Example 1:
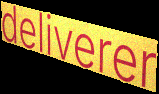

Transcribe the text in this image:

deliverer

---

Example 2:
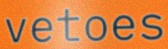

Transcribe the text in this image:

vetoes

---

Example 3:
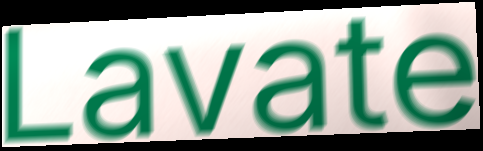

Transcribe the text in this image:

Lavate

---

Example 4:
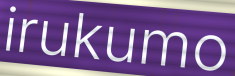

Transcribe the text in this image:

irukumo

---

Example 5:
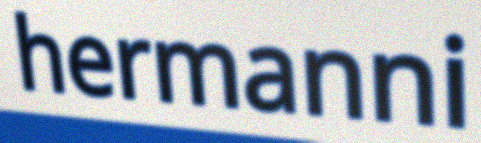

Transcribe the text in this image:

hermanni